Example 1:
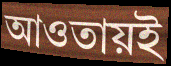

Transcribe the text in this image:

আওতায়ই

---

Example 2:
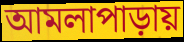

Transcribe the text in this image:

আমলাপাড়ায়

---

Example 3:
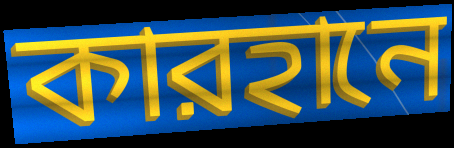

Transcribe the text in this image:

কারহানে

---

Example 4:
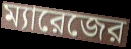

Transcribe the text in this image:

ম্যারেজের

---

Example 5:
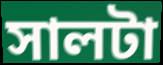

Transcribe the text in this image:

সালটা